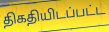
திகதியிடப்பட்ட